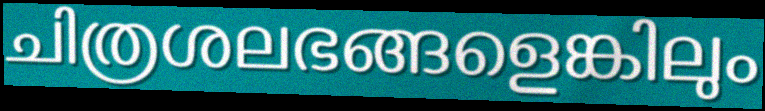
ചിത്രശലഭങ്ങളെങ്കിലും